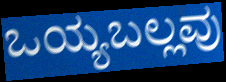
ಒಯ್ಯಬಲ್ಲವು